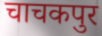
चाचकपुर